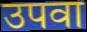
उपवा